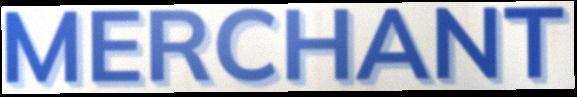
MERCHANT